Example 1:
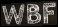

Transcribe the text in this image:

WBF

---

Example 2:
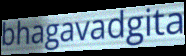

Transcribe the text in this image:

bhagavadgita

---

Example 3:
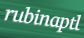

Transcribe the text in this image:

rubinaptl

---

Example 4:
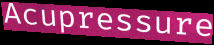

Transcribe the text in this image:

Acupressure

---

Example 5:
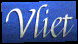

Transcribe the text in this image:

Vliet